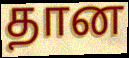
தான